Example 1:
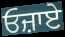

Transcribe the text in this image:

ਓਜ਼ਾਏ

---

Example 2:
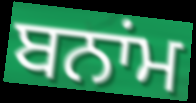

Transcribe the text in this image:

ਬਨਾਂਮ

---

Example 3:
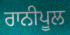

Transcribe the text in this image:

ਰਾਨੀਪੂਲ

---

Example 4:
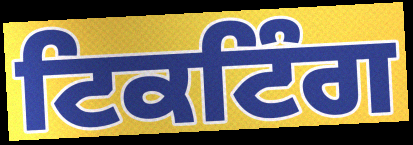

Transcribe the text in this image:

ਟਿਕਟਿੰਗ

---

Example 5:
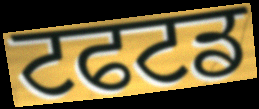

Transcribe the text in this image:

ਟਫਟਡ